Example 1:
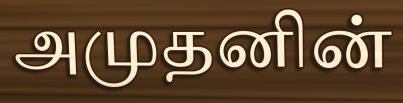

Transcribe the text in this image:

அமுதனின்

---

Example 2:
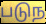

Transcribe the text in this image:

படுந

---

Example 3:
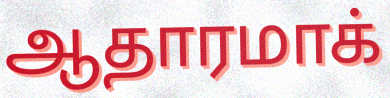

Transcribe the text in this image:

ஆதாரமாக்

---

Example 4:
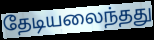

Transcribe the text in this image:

தேடியலைந்தது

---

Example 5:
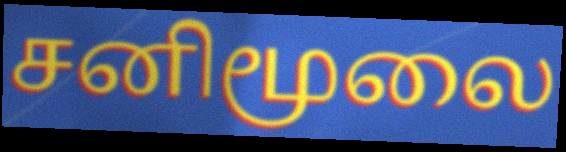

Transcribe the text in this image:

சனிமூலை